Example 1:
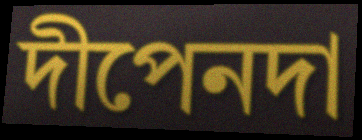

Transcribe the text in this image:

দীপেনদা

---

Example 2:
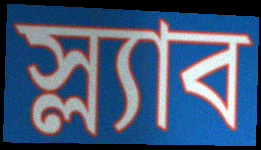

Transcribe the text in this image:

স্ল্যাব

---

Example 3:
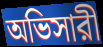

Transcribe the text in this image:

অভিসারী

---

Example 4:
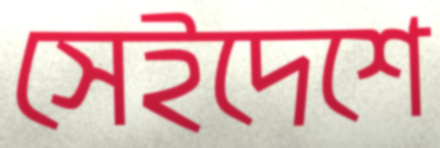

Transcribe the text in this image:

সেইদেশে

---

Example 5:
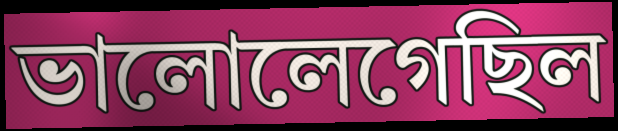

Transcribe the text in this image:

ভালোলেগেছিল